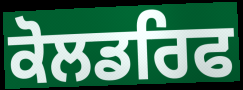
ਕੋਲਡਰਿਫ